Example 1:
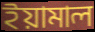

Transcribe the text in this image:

ইয়ামাল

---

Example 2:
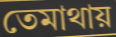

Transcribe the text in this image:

তেমাথায়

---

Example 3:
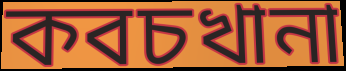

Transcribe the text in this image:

কবচখানা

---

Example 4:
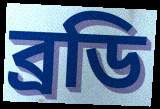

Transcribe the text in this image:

ব্রডি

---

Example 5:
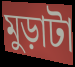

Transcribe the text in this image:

মুড়াটা